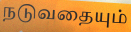
நடுவதையும்